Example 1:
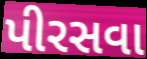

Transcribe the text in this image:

પીરસવા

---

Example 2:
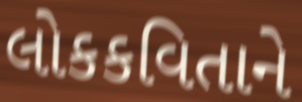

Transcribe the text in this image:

લોકકવિતાને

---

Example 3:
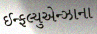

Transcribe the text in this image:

ઈન્ફલ્યુએન્ઝાના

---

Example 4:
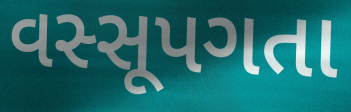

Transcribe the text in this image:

વસ્સૂપગતા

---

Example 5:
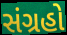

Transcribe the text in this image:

સંગ્રહો